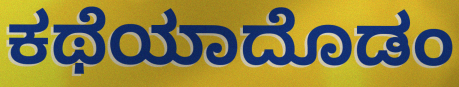
ಕಥೆಯಾದೊಡಂ